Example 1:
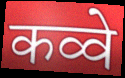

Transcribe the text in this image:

कव्वे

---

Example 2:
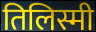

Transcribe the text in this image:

तिलिस्मी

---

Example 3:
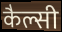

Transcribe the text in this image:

कैल्सी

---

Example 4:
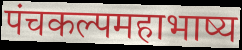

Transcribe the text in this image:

पंचकल्पमहाभाष्य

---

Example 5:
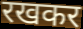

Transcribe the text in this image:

रखकर